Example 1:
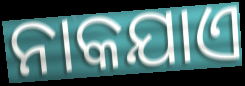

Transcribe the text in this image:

ନାକଯାଏ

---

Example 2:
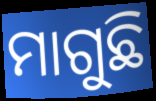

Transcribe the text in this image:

ମାଗୁଛି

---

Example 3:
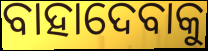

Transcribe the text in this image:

ବାହାଦେବାକୁ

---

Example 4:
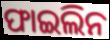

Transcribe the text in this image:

ଫାଇଲିନ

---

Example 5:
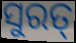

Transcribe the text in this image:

ସୁରତ୍